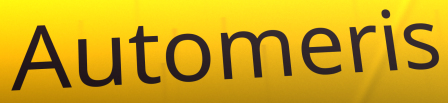
Automeris